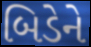
બિડેને